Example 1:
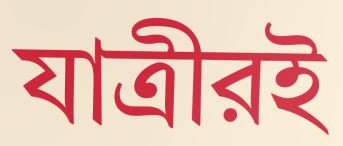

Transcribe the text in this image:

যাত্রীরই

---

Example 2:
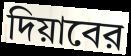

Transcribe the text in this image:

দিয়াবের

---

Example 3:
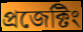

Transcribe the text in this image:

প্রজেক্টিং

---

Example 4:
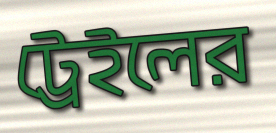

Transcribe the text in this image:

ট্রেইলের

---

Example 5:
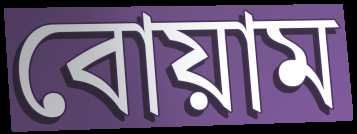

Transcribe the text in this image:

বোয়াম